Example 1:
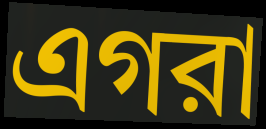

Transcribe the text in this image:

এগরা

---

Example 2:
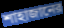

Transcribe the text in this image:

শাহাজানের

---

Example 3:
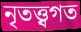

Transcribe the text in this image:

নৃতত্ত্বগত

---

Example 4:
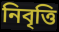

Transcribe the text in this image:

নিবৃত্তি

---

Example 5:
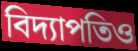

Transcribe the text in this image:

বিদ্যাপতিও